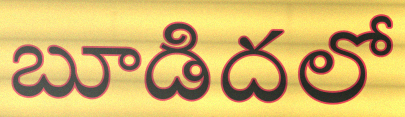
బూడిదలో